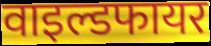
वाइल्डफायर